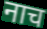
नाच